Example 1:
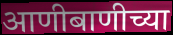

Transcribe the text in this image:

आणीबाणीच्या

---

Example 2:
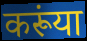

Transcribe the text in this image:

करूंया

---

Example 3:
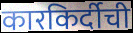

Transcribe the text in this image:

कारकिर्दीची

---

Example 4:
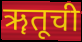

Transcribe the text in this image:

ॠतूची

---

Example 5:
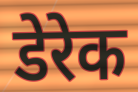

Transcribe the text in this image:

डेरेक